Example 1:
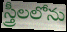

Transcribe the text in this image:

స్త్రీలలోను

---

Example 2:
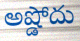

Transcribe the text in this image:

అష్డోదు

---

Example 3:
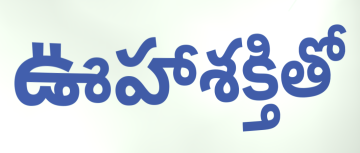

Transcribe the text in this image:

ఊహాశక్తితో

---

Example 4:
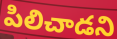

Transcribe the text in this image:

పిలిచాడని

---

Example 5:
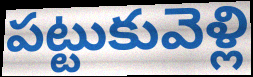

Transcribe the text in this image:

పట్టుకువెళ్లి